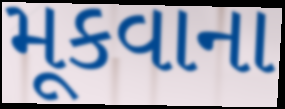
મૂકવાના